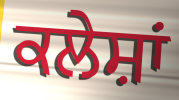
ਕਲੇਸ਼ਾਂ